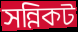
সন্নিকট